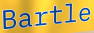
Bartle